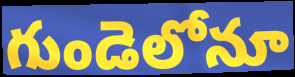
గుండెలోనూ